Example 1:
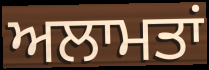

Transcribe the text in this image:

ਅਲਾਮਤਾਂ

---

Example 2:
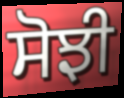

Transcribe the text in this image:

ਸੋਝੀ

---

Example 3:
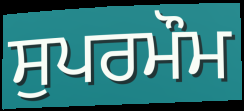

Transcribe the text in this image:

ਸੁਪਰਮੌਮ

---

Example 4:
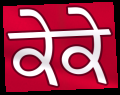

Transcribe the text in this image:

ਕੇਕੇ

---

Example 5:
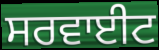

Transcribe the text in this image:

ਸਰਵਾਈਟ